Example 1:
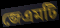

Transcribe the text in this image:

জেএমটি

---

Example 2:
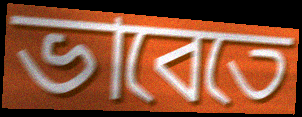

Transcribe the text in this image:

ভাবেতে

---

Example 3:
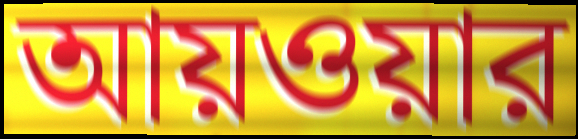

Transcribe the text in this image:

আয়ওয়ার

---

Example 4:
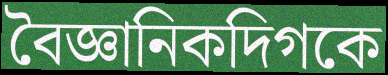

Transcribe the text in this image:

বৈজ্ঞানিকদিগকে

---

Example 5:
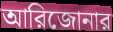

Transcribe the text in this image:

আরিজোনার